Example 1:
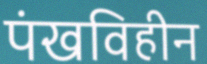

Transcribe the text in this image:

पंखविहीन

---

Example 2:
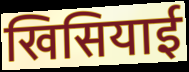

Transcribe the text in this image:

खिसियाई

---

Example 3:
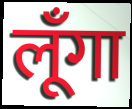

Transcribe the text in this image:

लूँगा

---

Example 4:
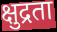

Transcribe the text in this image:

क्षुद्रता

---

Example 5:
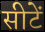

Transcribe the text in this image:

सीटें